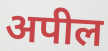
अपील